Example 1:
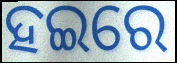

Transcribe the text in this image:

ହଇରେ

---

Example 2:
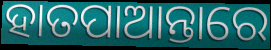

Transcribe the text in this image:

ହାତପାଆନ୍ତାରେ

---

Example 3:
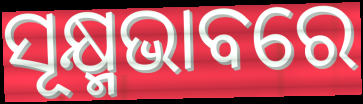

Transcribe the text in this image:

ସୂକ୍ଷ୍ମଭାବରେ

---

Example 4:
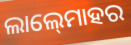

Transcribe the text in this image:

ଲାଲ୍‍ମୋହର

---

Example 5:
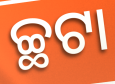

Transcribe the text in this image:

ଚ୍ଛଟା